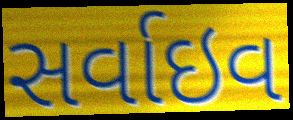
સર્વાઇવ